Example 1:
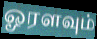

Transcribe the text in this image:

ஓரளவும்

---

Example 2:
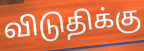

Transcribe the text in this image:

விடுதிக்கு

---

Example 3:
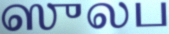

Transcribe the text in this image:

ஸுலப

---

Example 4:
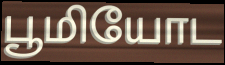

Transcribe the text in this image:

பூமியோட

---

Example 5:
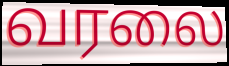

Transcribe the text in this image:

வரலை